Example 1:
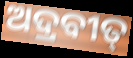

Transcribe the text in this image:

ଅଦ୍ରବୀତ୍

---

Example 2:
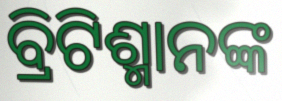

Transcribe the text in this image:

ବ୍ରିଟିଶ୍ମାନଙ୍କ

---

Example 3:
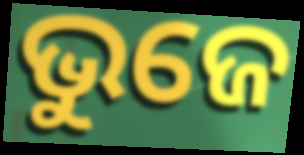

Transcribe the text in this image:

ଭୁଜେ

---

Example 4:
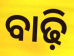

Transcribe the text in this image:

ବାଢ଼ି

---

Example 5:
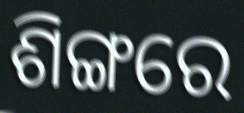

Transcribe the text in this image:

ଶିଙ୍ଗରେ